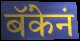
बॅंकेनं